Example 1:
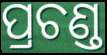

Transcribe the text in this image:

ପ୍ରଚଣ୍ଡ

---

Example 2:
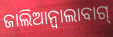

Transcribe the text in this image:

ଜାଲିଆନ୍ଵାଲାବାଗ୍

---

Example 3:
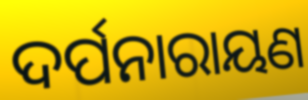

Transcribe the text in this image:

ଦର୍ପନାରାୟଣ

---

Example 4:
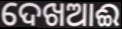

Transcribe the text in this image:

ଦେଖଆଈ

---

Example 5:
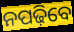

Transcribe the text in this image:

ନପଢ଼ିବେ